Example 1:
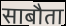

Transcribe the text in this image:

साबौता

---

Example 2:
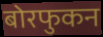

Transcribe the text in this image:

बोरफुकन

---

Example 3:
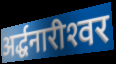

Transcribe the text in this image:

अर्द्धनारीश्वर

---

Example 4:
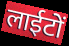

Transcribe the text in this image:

लाईटों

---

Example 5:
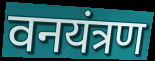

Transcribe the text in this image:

वनयंत्रण